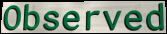
Observed